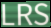
LRS